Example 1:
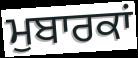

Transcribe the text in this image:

ਮੁਬਾਰਕਾਂ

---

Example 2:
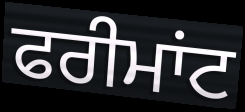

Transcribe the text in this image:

ਫਰੀਮਾਂਟ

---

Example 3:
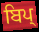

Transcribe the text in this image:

ਬਿਪ੍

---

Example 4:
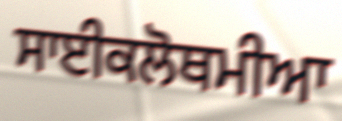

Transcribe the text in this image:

ਸਾਈਕਲੋਥਮੀਆ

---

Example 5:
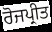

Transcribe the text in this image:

ਰੋਜਪ੍ਰੀਤ